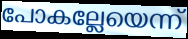
പോകല്ലേയെന്ന്